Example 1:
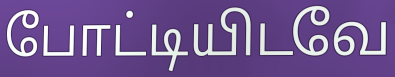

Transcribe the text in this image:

போட்டியிடவே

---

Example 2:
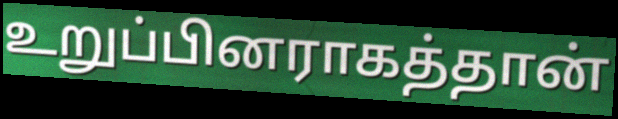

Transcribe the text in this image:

உறுப்பினராகத்தான்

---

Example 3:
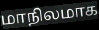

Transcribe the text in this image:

மாநிலமாக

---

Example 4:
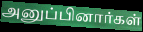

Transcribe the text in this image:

அனுப்பினார்கள்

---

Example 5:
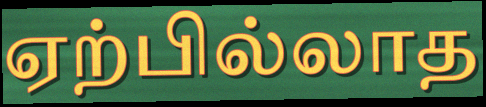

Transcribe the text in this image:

ஏற்பில்லாத